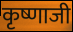
कृष्णाजी